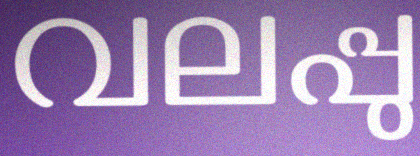
വലപ്പു